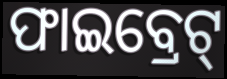
ଫାଇବ୍ରେଟ୍